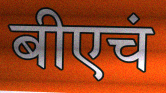
बीएचं